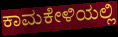
ಕಾಮಕೇಳಿಯಲ್ಲಿ